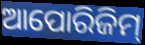
ଆପୋରିଜିମ୍